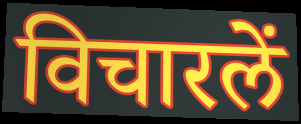
विचारलें